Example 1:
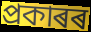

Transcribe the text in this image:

প্ৰকাৰৰ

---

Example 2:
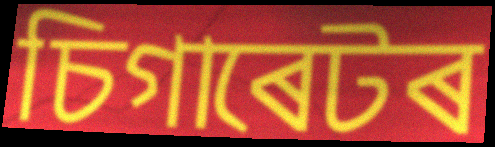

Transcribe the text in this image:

চিগাৰেটৰ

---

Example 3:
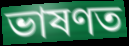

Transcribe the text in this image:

ভাষণত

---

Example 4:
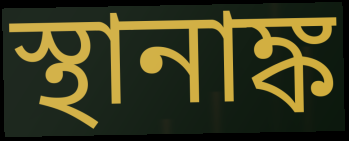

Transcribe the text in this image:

স্থানাঙ্ক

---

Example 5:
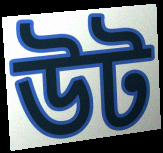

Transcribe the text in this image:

উট